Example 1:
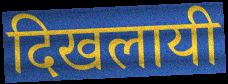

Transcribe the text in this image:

दिखलायी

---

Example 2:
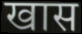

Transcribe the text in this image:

खास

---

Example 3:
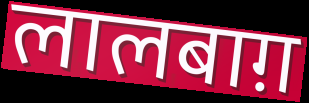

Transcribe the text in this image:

लालबाग़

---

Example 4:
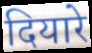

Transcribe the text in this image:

दियारे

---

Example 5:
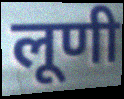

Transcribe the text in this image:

लूणी